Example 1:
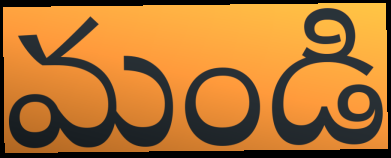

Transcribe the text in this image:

మండి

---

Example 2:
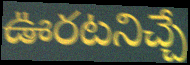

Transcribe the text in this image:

ఊరటనిచ్చే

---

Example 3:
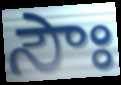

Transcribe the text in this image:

సౌః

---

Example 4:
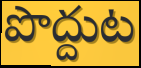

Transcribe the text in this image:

పొద్దుట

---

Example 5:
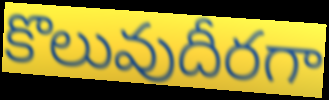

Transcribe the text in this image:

కొలువుదీరగా